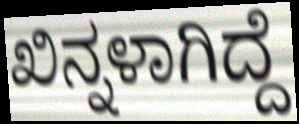
ಖಿನ್ನಳಾಗಿದ್ದೆ